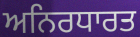
ਅਨਿਰਧਾਰਤ